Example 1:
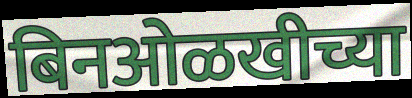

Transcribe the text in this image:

बिनओळखीच्या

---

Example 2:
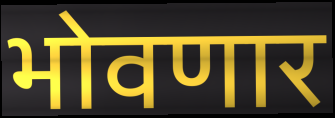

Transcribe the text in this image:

भोवणार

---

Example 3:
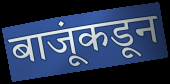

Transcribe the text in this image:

बाजूंकडून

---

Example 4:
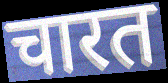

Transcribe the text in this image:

चारत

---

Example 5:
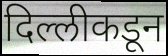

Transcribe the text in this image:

दिल्लीकडून